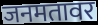
जनमतावर